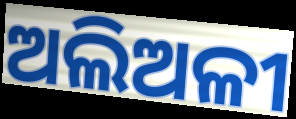
ଅଲିଅଳୀ